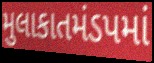
મુલાકાતમંડપમાં